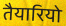
तैयारियो